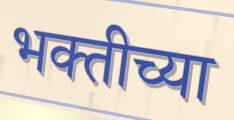
भक्तीच्या